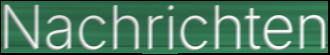
Nachrichten